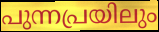
പുന്നപ്രയിലും